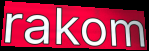
rakom